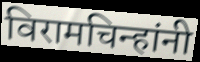
विरामचिन्हांनी